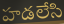
హడలేసి